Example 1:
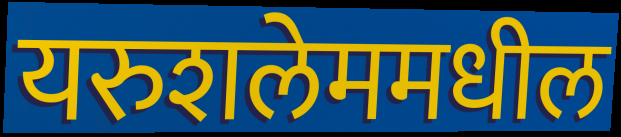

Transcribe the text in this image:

यरुशलेममधील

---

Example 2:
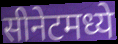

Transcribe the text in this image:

सीनेटमध्ये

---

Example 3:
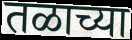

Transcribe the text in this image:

तळाच्या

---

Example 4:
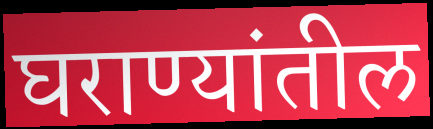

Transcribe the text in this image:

घराण्यांतील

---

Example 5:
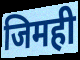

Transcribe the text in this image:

जिमही